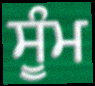
ਸੂੰਮ